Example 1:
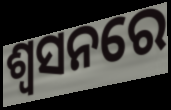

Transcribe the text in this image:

ଶ୍ଵସନରେ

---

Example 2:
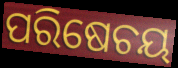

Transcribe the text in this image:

ପରିଷେଚୟ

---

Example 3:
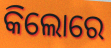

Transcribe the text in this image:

କିଲୋରେ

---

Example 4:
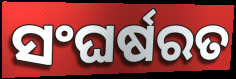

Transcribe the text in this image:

ସଂଘର୍ଷରତ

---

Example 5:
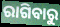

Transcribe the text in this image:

ରାଗିବାରୁ